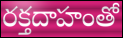
రక్తదాహంతో